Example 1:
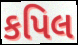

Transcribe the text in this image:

કપિલ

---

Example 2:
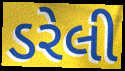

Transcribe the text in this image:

ડરેલી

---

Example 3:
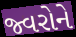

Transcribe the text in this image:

જ્વરોને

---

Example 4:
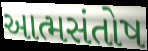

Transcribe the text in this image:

આત્મસંતોષ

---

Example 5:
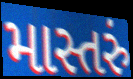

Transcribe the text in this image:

માસ્તરું